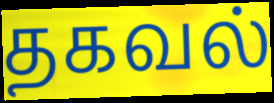
தகவல்